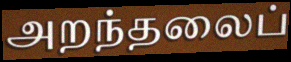
அறந்தலைப்